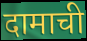
दामाची